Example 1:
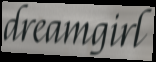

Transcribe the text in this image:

dreamgirl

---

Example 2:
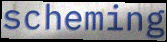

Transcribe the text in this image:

scheming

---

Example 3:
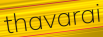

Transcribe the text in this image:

thavarai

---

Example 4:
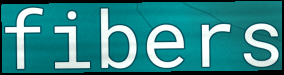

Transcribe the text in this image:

fibers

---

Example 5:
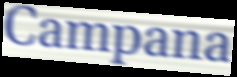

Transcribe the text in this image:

Campana